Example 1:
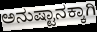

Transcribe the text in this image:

ಅನುಷ್ಟಾನಕ್ಕಾಗಿ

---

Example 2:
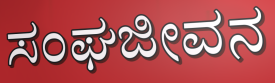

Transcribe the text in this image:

ಸಂಘಜೀವನ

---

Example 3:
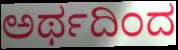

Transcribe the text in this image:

ಅರ್ಥದಿಂದ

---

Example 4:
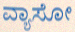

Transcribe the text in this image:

ವ್ಯಾಸೋ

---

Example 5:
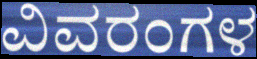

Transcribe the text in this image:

ವಿವರಂಗಳ